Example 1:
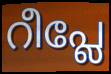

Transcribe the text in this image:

റീപ്ലേ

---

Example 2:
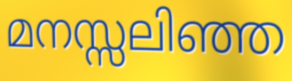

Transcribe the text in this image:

മനസ്സലിഞ്ഞ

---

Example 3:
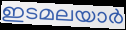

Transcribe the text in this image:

ഇടമലയാർ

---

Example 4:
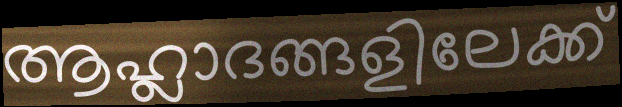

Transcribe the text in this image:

ആഹ്ലാദങ്ങളിലേക്ക്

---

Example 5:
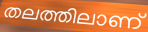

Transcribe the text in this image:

തലത്തിലാണ്